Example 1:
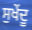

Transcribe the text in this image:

ਸੁਖੇਂਦੂ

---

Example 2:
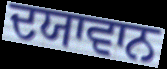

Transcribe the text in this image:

ਦਯਾਵਾਨ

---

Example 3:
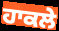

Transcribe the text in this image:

ਹਾਕਲੇ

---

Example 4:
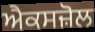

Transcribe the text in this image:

ਐਕਸਜ਼ੋਲ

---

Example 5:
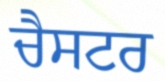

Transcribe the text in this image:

ਚੈਸਟਰ